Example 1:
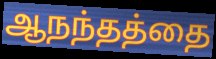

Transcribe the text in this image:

ஆநந்தத்தை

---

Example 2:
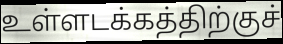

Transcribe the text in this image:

உள்ளடக்கத்திற்குச்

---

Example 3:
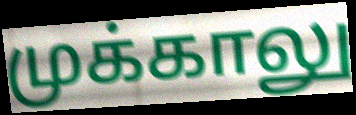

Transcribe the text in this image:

முக்காலு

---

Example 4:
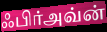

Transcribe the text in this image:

ஃபிர்அவ்ன்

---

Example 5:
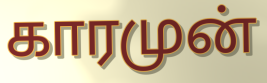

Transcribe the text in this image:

காரமுன்